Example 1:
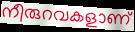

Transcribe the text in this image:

നീരുറവകളാണ്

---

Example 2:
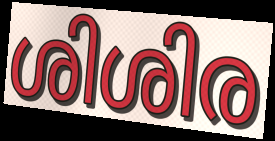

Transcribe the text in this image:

ശിശിര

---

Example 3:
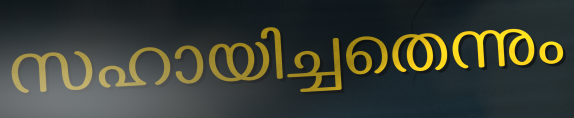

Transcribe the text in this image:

സഹായിച്ചതെന്നും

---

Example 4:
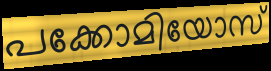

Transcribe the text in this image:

പക്കോമിയോസ്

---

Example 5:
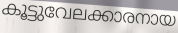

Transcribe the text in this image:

കൂട്ടുവേലക്കാരനായ